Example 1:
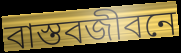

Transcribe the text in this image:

বাস্তবজীবনে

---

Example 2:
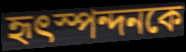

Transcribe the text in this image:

হৃৎস্পন্দনকে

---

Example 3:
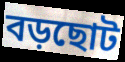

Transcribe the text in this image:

বড়ছোট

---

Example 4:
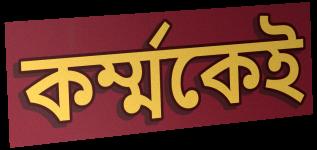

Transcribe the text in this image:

কর্ম্মকেই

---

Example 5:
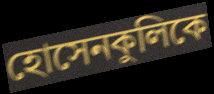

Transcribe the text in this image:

হোসেনকুলিকে